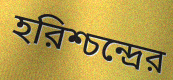
হরিশ্চন্দ্রের